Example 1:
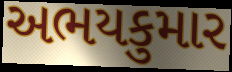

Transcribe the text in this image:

અભયકુમાર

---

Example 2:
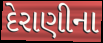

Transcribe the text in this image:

દેરાણીના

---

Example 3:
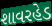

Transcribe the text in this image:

શાવરહેડ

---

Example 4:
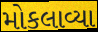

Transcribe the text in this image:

મોકલાવ્યા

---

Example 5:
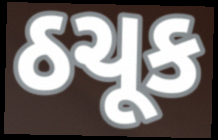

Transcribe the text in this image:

ઠચૂક